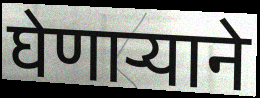
घेणाऱ्याने